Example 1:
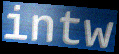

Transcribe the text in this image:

intw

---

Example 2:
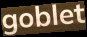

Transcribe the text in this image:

goblet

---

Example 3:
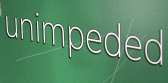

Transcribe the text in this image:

unimpeded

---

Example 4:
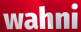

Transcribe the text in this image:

wahni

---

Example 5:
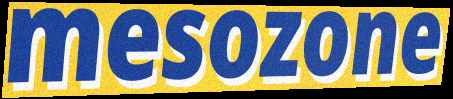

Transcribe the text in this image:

mesozone